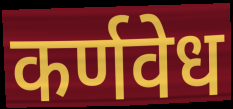
कर्णवेध